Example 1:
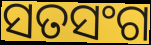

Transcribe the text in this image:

ସତସଂଗ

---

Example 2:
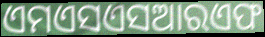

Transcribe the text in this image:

ଏମଏସଏସଆରଏଫ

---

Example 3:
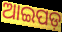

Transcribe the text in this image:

ଆଇପଡ଼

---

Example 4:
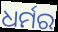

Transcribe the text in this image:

ଧର୍ମର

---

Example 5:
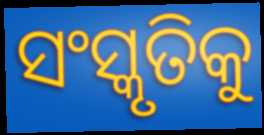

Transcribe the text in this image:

ସଂସ୍କୃତିକୁ